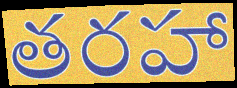
తరహా